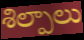
శిల్పాలు